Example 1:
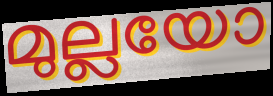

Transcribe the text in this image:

മുല്ലയോ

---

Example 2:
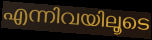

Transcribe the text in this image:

എന്നിവയിലൂടെ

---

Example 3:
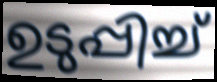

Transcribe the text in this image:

ഉടുപ്പിച്ച്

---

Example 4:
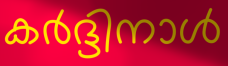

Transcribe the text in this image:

കർദ്ദിനാൾ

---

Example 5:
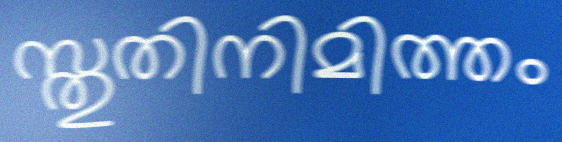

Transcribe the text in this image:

സ്തുതിനിമിത്തം